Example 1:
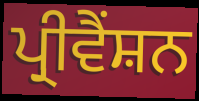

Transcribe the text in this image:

ਪ੍ਰੀਵੈਂਸ਼ਨ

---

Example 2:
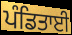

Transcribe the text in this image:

ਪੰਡਿਤਾਈ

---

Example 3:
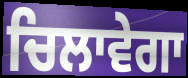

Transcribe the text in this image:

ਚਿਲਾਵੇਗਾ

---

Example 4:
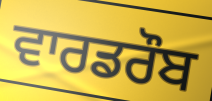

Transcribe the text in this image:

ਵਾਰਡਰੌਬ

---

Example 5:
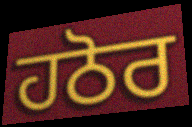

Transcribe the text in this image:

ਹਠੋਰ